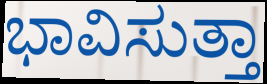
ಭಾವಿಸುತ್ತಾ